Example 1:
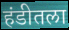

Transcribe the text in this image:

हंडीतला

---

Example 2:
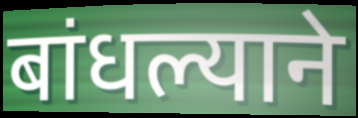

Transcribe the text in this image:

बांधल्याने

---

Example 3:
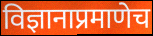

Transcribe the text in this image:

विज्ञानाप्रमाणेच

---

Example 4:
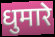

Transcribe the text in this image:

धुमारे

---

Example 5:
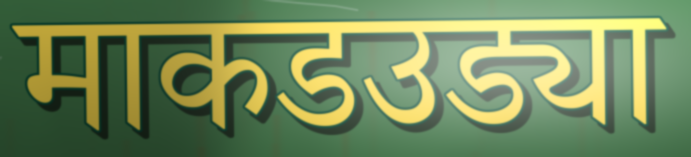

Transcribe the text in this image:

माकडउड्या